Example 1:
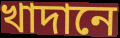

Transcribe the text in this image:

খাদানে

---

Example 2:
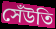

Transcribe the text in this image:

সেঁউতি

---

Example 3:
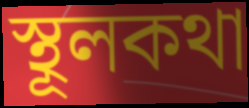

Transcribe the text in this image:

স্থূলকথা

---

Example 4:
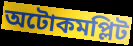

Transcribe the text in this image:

অটোকমপ্লিট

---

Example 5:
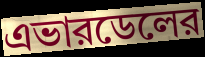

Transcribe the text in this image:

এভারডেলের